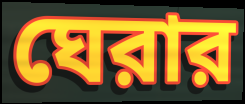
ঘেরার